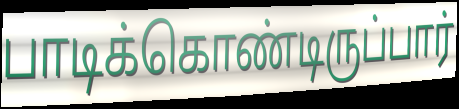
பாடிக்கொண்டிருப்பார்